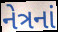
નેત્રનાં